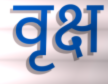
वृक्ष